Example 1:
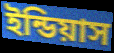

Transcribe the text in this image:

ইন্ডিয়াস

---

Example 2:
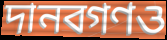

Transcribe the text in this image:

দানবগণও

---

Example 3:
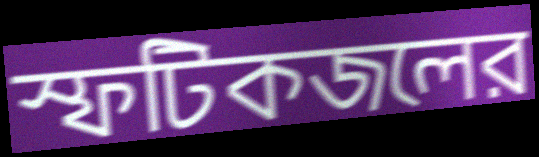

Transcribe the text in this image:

স্ফটিকজলের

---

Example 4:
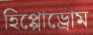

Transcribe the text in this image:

হিপ্পোড্রোম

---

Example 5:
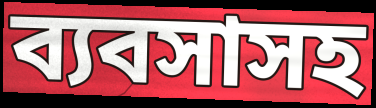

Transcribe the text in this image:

ব্যবসাসহ